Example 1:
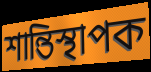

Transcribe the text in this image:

শান্তিস্থাপক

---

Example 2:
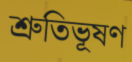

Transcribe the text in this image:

শ্রুতিভূষণ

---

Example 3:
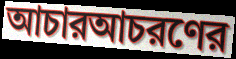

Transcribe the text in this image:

আচারআচরণের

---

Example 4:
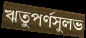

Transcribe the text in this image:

ঋতুপর্ণসুলভ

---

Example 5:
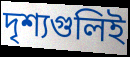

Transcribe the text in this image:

দৃশ্যগুলিই